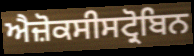
ਐਜ਼ੋਕਸੀਸਟ੍ਰੋਬਿਨ